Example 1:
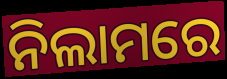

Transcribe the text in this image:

ନିଲାମରେ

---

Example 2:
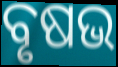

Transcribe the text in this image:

ବୃଷଭ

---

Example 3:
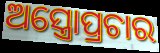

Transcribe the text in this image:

ଅସ୍ତ୍ରୋପ୍ରଚାର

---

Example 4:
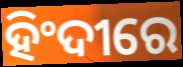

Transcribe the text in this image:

ହିଂଦୀରେ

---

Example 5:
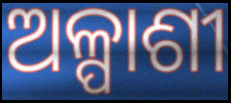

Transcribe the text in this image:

ଅଳ୍ପାଶୀ